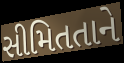
સીમિતતાને